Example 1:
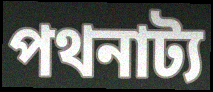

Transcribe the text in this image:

পথনাট্য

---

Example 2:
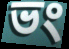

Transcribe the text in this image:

ভং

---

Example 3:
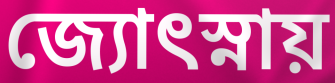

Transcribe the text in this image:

জ্যোৎস্নায়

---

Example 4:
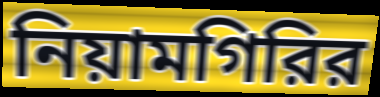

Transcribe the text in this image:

নিয়ামগিরির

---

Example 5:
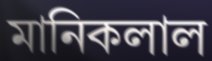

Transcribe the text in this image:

মানিকলাল